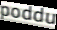
poddu